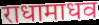
राधामाधव